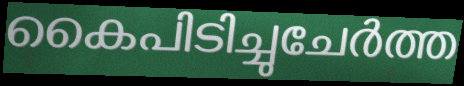
കൈപിടിച്ചുചേർത്ത